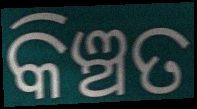
କିଞ୍ଚତ